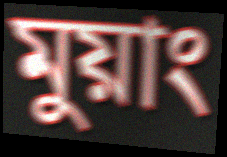
মুয়াং